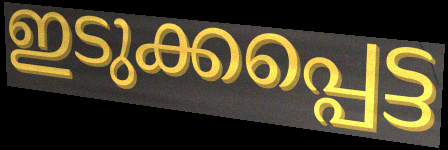
ഇടുക്കപ്പെട്ട